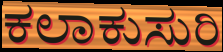
ಕಲಾಕುಸುರಿ